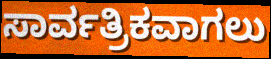
ಸಾರ್ವತ್ರಿಕವಾಗಲು